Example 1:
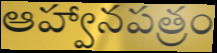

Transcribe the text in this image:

ఆహ్వానపత్రం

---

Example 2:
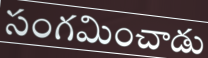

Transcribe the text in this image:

సంగమించాడు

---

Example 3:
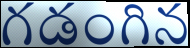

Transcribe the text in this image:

గడంగిన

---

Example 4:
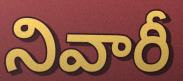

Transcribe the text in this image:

నివారీ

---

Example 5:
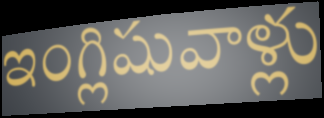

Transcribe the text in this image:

ఇంగ్లిషువాళ్లు